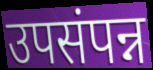
उपसंपन्न